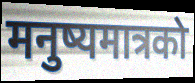
मनुष्यमात्रको